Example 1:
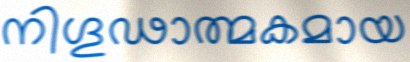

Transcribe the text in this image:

നിഗൂഢാത്മകമായ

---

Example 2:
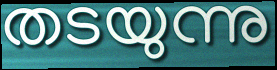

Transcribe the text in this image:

തടയുന്നു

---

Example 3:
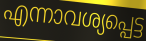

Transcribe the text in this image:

എന്നാവശ്യപ്പെട്ട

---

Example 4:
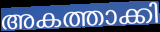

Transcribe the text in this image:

അകത്താക്കി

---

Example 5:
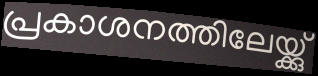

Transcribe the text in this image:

പ്രകാശനത്തിലേയ്ക്കു്